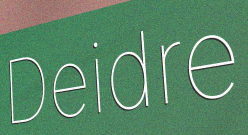
Deidre